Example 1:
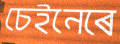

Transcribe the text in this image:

চেইনেৰে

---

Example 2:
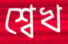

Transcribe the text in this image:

শ্বেখ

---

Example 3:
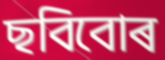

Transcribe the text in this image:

ছবিবোৰ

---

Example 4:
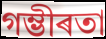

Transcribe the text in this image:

গম্ভীৰতা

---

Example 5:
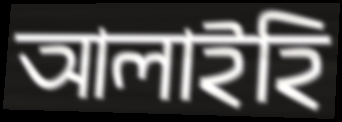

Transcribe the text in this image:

আলাইহি